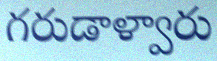
గరుడాళ్వారు